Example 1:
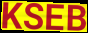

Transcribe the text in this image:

KSEB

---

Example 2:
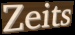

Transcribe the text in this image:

Zeits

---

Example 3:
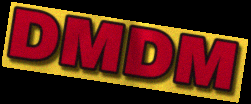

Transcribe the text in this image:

DMDM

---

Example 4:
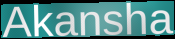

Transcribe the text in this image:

Akansha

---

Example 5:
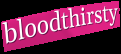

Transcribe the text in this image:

bloodthirsty